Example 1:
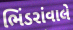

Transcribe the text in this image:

ભિંડરાંવાલે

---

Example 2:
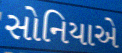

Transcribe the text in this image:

સોનિયાએ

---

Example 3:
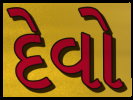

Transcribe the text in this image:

દેવો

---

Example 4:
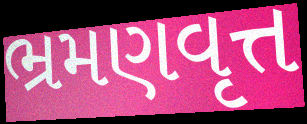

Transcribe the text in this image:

ભ્રમણવૃત્ત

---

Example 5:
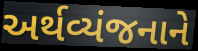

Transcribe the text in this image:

અર્થવ્યંજનાને